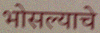
भोसल्याचे